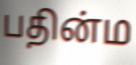
பதின்ம